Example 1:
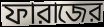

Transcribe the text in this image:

ফারাজের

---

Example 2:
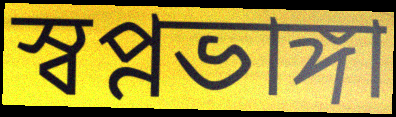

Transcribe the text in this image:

স্বপ্নভাঙ্গা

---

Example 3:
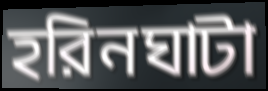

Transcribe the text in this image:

হরিনঘাটা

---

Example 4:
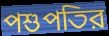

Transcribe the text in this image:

পশুপতির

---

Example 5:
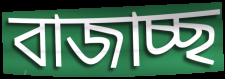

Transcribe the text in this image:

বাজাচ্ছ